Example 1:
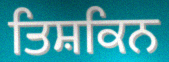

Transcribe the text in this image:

ਤਿਸ਼ਕਿਨ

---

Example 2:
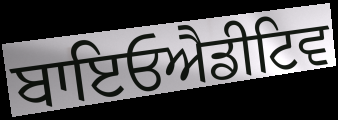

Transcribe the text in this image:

ਬਾਇਓਐਡੀਟਿਵ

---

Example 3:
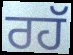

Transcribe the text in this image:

ਰਹੱ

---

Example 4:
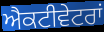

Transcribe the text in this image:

ਐਕਟੀਵੇਟਰਾਂ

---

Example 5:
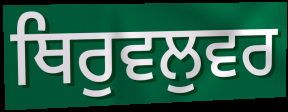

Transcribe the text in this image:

ਥਿਰੁਵਲੁਵਰ